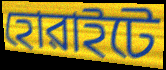
হোৱাইটে